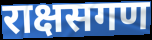
राक्षसगण